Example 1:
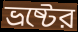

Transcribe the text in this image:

ভ্রষ্টের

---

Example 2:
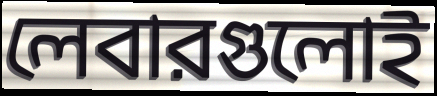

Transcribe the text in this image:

লেবারগুলোই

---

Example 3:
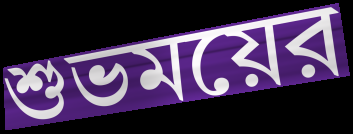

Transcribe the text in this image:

শুভময়ের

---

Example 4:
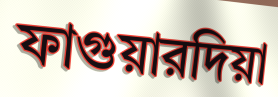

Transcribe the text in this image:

ফাগুয়ারদিয়া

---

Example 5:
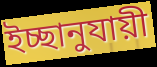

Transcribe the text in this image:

ইচ্ছানুযায়ী